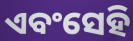
ଏବଂସେହି